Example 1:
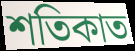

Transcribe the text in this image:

শতিকাত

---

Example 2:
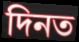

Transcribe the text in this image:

দিনত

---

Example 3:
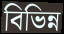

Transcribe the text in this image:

বিভিন্ন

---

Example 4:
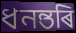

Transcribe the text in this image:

ধনন্তৰি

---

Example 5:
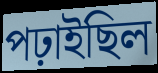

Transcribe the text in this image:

পঢ়াইছিল